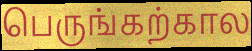
பெருங்கற்கால